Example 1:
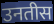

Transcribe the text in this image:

उनतीस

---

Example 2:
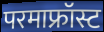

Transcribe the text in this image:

परमाफ्रॉस्ट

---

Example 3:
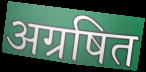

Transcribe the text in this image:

अग्रषित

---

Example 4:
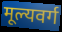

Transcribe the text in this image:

मूल्यवर्ग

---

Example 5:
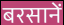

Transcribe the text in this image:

बरसानें